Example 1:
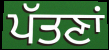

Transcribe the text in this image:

ਪੱਤਣਾਂ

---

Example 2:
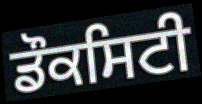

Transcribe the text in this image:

ਡੌਕਸਿਟੀ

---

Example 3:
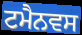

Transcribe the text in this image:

ਟਮੈਨਵਸ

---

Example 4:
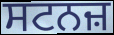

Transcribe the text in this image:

ਸਟਨਜ਼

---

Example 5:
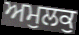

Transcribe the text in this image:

ਅਮੁਲਕੁ